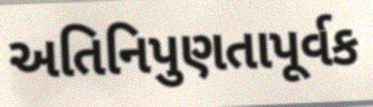
અતિનિપુણતાપૂર્વક